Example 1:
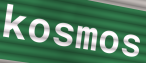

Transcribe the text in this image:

kosmos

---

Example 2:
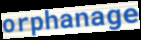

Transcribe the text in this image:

orphanage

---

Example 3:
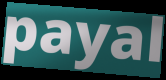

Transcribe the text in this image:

payal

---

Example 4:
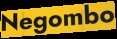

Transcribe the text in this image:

Negombo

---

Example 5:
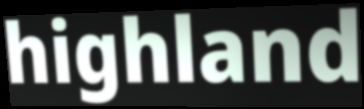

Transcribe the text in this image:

highland